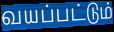
வயப்பட்டும்